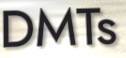
DMTs